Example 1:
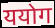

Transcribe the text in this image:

ययोग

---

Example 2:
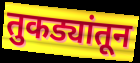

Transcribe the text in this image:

तुकड्यांतून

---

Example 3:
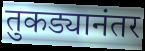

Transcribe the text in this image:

तुकड्यानंतर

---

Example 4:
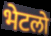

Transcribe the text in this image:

भेटलो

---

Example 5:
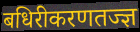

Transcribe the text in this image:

बधिरीकरणतज्ज्ञ